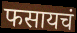
फसायचं